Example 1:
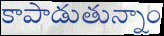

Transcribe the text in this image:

కాపాడుతున్నాం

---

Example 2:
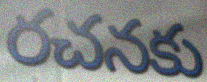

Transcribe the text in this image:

రచనకు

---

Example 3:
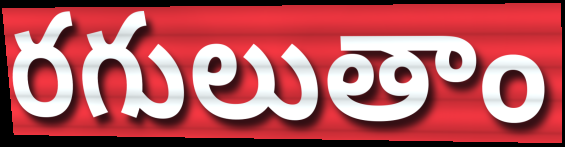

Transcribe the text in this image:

రగులుతాం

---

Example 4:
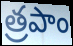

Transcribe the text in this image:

త్రపాం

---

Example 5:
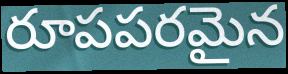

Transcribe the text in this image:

రూపపరమైన